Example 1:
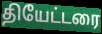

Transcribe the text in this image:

தியேட்டரை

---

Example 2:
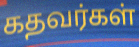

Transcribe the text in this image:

கதவர்கள்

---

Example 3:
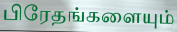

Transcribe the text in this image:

பிரேதங்களையும்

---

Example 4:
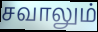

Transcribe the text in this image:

சவாலும்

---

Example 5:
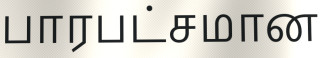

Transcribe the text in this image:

பாரபட்சமான